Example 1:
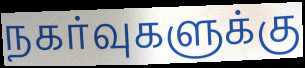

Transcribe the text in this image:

நகர்வுகளுக்கு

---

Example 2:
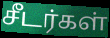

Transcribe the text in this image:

சீடர்கள்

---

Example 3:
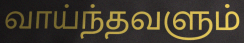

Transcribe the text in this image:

வாய்ந்தவளும்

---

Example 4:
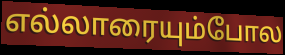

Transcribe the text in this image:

எல்லாரையும்போல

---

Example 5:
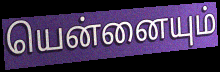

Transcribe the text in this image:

யென்னையும்